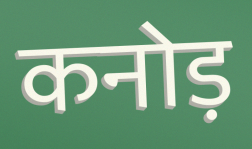
कनोड़